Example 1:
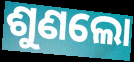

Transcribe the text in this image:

ଶୁଣଲୋ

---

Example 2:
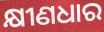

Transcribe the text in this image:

କ୍ଷୀଣଧାର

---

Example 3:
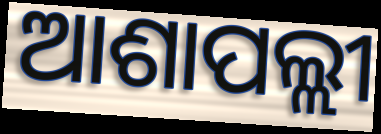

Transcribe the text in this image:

ଆଶାପଲ୍ଲୀ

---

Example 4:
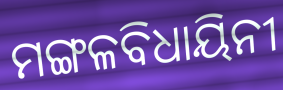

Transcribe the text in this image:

ମଙ୍ଗଳବିଧାୟିନୀ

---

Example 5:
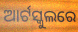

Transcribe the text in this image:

ଆର୍ଟସ୍କୁଲରେ